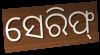
ସେରିଫ୍